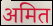
अमित